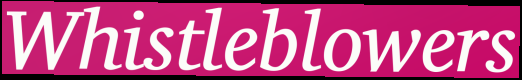
Whistleblowers